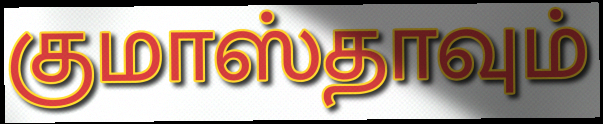
குமாஸ்தாவும்